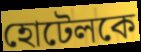
হোটেলকে